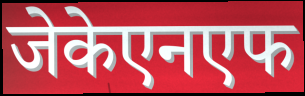
जेकेएनएफ